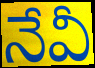
నేవీ